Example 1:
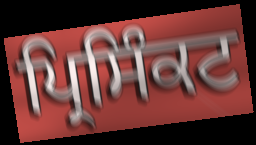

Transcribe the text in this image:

ਪ੍ਰਿਸਿੰਕਟ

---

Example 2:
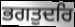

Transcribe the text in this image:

ਭਗਤੁਦਰਿ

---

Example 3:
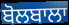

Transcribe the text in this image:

ਬੋਲਬਾਲਾ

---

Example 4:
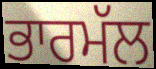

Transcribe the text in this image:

ਭਾਰਮੱਲ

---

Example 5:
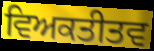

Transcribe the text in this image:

ਵਿਅਕਤੀਤਵ